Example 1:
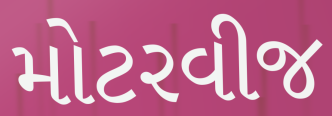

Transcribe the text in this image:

મોટરવીજ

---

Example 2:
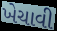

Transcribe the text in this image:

ખેચાવી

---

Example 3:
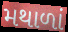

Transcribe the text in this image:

મથાળાં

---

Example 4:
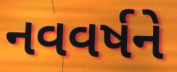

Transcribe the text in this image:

નવવર્ષને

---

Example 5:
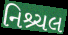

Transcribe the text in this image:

નિશ્ર્ચલ